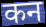
कन